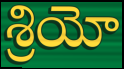
శ్రియో